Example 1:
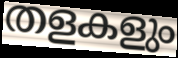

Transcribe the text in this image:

തളകളും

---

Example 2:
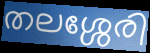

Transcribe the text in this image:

തലശ്ശേരി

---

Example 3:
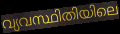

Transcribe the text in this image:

വ്യവസ്ഥിതിയിലെ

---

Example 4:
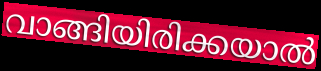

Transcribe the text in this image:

വാങ്ങിയിരിക്കയാൽ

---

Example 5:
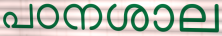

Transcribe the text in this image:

പഠനശാല